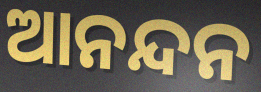
ଆନନ୍ଦନ